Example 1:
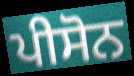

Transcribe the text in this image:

ਪੀਸੋਨ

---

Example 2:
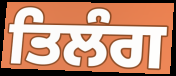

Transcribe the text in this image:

ਤਿਲੰਗ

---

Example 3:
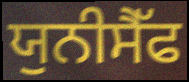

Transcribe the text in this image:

ਯੁਨੀਸੈੱਫ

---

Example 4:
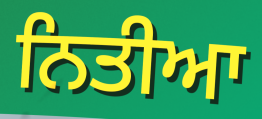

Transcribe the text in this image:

ਨਿਤੀਆ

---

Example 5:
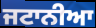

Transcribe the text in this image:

ਜਟਾਨੀਆ